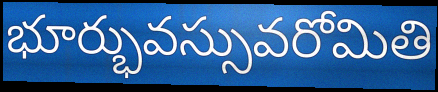
భూర్భువస్సువరోమితి